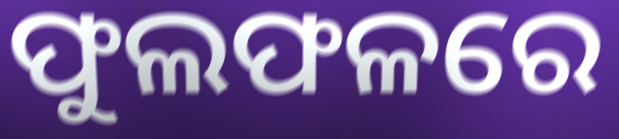
ଫୁଲଫଳରେ